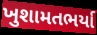
ખુશામતભર્યા